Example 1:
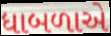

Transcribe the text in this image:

ધાબળાએ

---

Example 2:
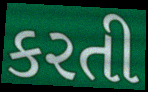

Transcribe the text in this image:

કરતી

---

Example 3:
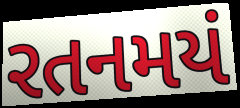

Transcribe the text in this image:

રતનમયં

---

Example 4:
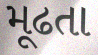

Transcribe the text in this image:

મૂઢતા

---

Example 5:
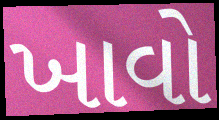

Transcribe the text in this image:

ખાવો